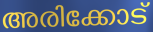
അരിക്കോട്